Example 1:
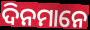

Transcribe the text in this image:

ଦିନମାନେ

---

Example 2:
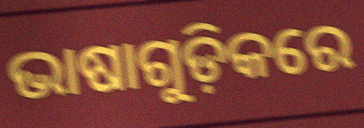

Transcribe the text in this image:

ଭାଷାଗୁଡ଼ିକରେ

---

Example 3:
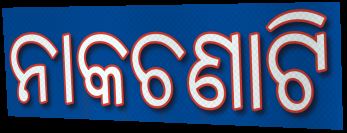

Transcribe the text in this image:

ନାକଚଣାଟି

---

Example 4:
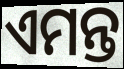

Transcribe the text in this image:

ଏମନ୍ତ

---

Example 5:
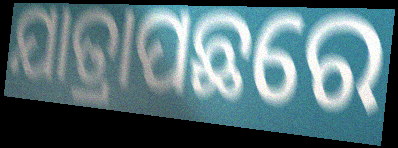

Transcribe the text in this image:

ଯାତ୍ରାପଛରେ